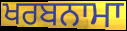
ਖਰਬਨਾਮਾ